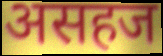
असहज